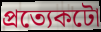
প্ৰত্যেকটো